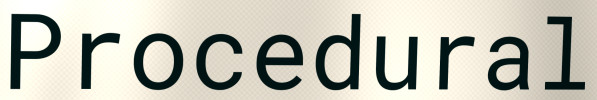
Procedural